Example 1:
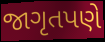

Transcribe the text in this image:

જાગૃતપણે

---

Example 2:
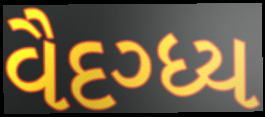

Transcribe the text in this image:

વૈદગ્ધ્ય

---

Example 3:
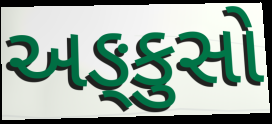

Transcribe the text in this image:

અઙ્કુસો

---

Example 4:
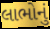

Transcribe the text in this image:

લાભોનું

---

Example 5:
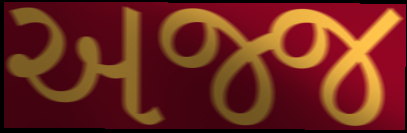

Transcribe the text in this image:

અજ્જ